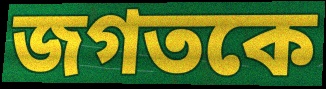
জগতকে